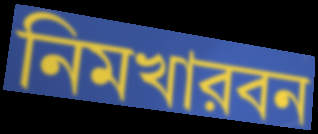
নিমখারবন